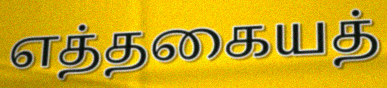
எத்தகையத்